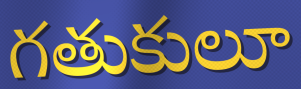
గతుకులూ